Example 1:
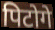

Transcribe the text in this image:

पिटोगे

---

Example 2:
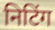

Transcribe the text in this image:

निटिंग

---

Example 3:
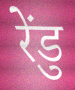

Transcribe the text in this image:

रेंडु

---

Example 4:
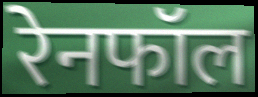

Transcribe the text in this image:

रेनफॉल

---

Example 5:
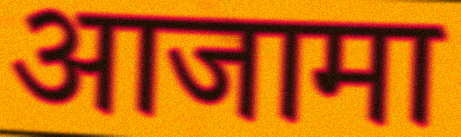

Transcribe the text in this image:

आजामा